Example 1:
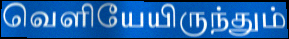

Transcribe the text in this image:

வெளியேயிருந்தும்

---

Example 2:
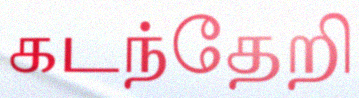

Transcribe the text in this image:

கடந்தேறி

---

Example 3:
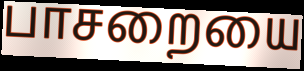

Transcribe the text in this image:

பாசறையை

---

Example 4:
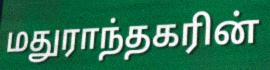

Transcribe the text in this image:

மதுராந்தகரின்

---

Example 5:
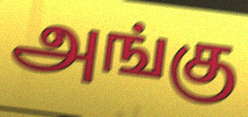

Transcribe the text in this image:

அங்கு